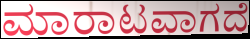
ಮಾರಾಟವಾಗದೆ